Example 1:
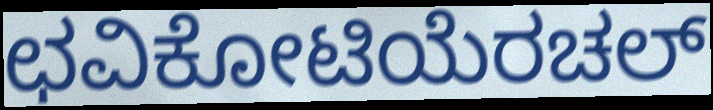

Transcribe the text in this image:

ಛವಿಕೋಟಿಯೆರಚಲ್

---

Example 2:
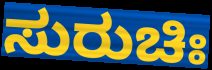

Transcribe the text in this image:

ಸುರುಚಿಃ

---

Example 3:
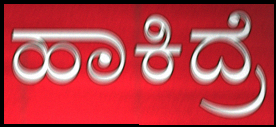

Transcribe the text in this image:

ಹಾಕಿದ್ರೆ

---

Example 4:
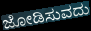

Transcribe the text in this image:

ಜೋಡಿಸುವದು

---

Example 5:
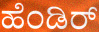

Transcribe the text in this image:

ಹೆಂಡಿರ್